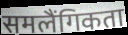
समलैंगिकता